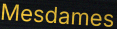
Mesdames